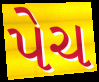
પેચ